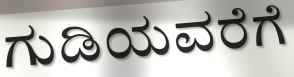
ಗುಡಿಯವರೆಗೆ